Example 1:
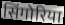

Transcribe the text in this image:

सिंगोरिया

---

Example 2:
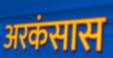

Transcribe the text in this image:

अरकंसास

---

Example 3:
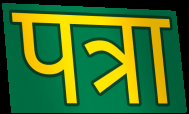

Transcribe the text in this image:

पत्रा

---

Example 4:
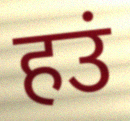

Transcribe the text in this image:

हउं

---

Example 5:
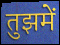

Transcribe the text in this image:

तुझमें